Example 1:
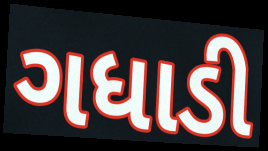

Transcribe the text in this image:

ગધાડી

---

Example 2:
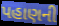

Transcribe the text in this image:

પહાણની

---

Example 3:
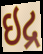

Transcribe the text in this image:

ઇદ્ર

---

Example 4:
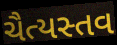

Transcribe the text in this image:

ચૈત્યસ્તવ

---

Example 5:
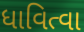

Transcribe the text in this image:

ધાવિત્વા